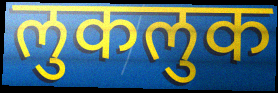
लुकलुक